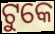
ଟୁକେ